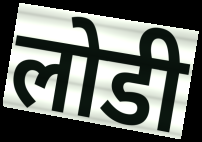
लोडी